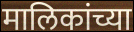
मालिकांच्या